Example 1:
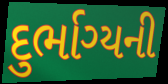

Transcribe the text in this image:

દુર્ભાગ્યની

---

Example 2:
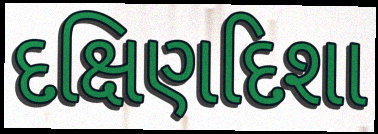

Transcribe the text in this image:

દક્ષિણદિશા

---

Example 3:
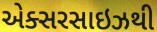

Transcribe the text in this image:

એક્સરસાઇઝથી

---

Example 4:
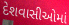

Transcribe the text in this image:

દેશવાસીઓમાં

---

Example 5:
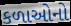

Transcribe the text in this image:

કળાઓનો